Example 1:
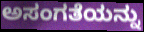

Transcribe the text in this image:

ಅಸಂಗತೆಯನ್ನು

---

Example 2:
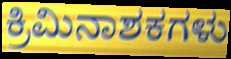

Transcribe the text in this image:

ಕ್ರಿಮಿನಾಶಕಗಳು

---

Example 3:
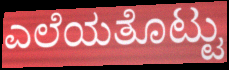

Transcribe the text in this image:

ಎಲೆಯತೊಟ್ಟು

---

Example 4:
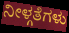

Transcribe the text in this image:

ನೀಳ್ಗತೆಗಳು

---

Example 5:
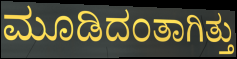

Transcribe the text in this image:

ಮೂಡಿದಂತಾಗಿತ್ತು